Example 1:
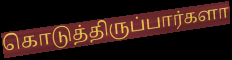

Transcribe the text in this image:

கொடுத்திருப்பார்களா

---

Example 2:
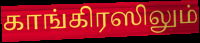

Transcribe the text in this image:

காங்கிரஸிலும்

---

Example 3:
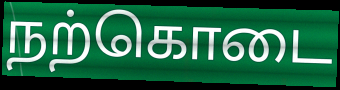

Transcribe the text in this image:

நற்கொடை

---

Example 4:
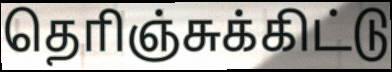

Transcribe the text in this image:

தெரிஞ்சுக்கிட்டு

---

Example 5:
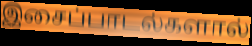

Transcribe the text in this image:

இசைப்பாடல்களால்